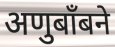
अणुबाँबने